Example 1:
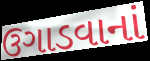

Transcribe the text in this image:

ઉગાડવાનાં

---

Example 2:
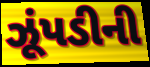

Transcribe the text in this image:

ઝૂંપડીની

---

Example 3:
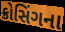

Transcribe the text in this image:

ક્રોસિંગના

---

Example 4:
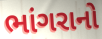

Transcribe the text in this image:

ભાંગરાનો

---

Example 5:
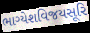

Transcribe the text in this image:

ભાગ્યેશવિજયસૂરિ